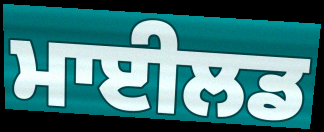
ਮਾਈਲਡ